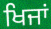
ਖਿਜਾਂ